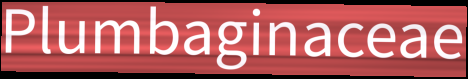
Plumbaginaceae